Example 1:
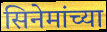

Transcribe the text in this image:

सिनेमांच्या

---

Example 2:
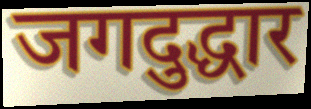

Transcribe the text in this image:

जगदुद्धार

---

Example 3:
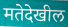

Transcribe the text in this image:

मतेदेखील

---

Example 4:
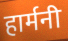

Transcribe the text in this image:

हार्मनी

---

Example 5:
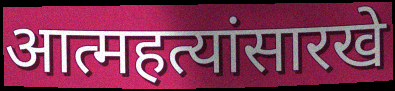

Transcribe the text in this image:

आत्महत्यांसारखे